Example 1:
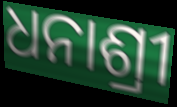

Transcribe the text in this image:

ଧନାଶ୍ରୀ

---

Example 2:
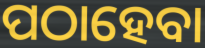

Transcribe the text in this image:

ପଠାହେବା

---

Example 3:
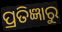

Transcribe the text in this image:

ପ୍ରତିଜ୍ଞାରୁ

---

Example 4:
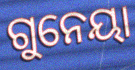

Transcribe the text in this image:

ଗୁନେୟା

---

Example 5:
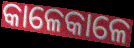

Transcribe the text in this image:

କାଳେକାଳେ